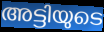
അട്ടിയുടെ